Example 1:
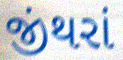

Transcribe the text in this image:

જીંથરાં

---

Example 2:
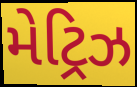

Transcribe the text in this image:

મેટ્રિઝ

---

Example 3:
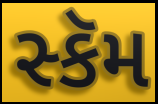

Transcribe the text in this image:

સ્કૅમ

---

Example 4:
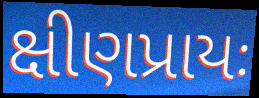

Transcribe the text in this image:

ક્ષીણપ્રાયઃ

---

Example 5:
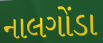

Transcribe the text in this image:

નાલગોંડા